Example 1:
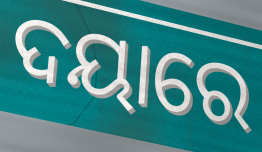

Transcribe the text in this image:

ଦୟାରେ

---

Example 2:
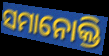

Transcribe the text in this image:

ସମାନୋକ୍ତି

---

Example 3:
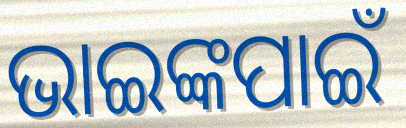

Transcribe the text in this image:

ଭାଇଙ୍କପାଇଁ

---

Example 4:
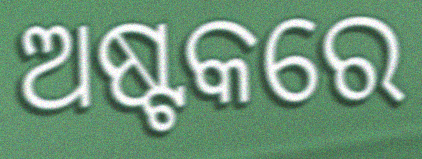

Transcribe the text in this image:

ଅଷ୍ଟକରେ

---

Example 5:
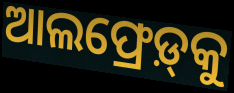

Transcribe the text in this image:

ଆଲଫ୍ରେଡ଼୍‍କୁ